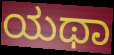
ಯಥಾ